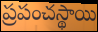
ప్రపంచస్థాయి